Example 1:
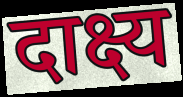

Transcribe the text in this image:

दाक्ष्य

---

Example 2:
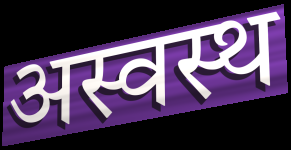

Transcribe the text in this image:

अस्वस्थ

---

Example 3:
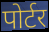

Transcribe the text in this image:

पोर्टर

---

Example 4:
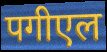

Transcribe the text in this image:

पगीएल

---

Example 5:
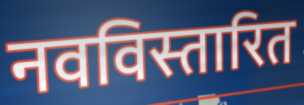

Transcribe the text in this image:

नवविस्तारित